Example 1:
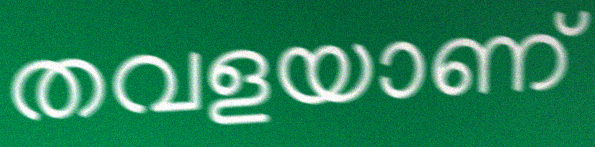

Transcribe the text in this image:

തവളയാണ്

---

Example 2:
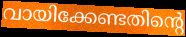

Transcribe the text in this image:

വായിക്കേണ്ടതിന്റെ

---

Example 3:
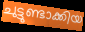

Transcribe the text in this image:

ചുട്ടുണ്ടാക്കിയ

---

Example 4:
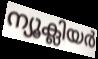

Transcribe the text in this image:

ന്യൂക്ലിയർ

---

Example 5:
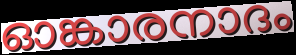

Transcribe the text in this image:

ഓങ്കാരനാദം